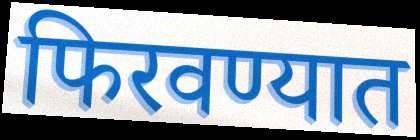
फिरवण्यात